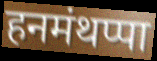
हनमंथप्पा